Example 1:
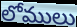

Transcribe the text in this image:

లోములు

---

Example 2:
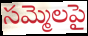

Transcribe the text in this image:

సమ్మెలపై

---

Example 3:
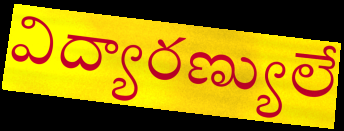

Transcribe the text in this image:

విద్యారణ్యులే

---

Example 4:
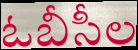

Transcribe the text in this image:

ఓబీసీల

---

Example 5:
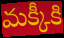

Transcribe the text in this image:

మక్కీకి